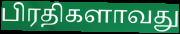
பிரதிகளாவது